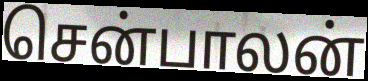
சென்பாலன்